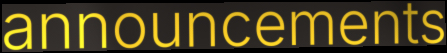
announcements